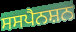
ਸਸਪੈਨਸ਼ਨ